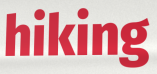
hiking